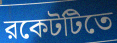
রকেটটিতে